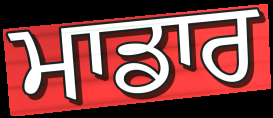
ਮਾਡਾਰ